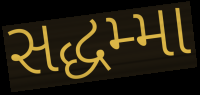
સદ્ધમ્મા